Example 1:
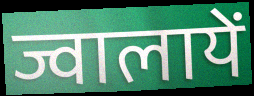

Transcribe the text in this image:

ज्वालायें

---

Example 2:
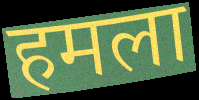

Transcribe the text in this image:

हमला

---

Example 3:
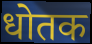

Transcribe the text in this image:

धोतक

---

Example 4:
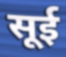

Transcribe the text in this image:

सूई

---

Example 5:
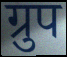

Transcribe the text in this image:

ग्रुप